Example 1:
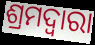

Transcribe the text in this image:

ଶ୍ରମଦ୍ଵାରା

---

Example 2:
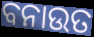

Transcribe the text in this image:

ବନାଉତ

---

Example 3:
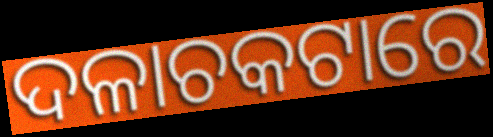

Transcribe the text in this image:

ଦଳାଚକଟାରେ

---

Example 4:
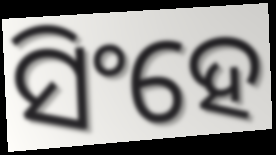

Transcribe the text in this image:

ସିଂହେ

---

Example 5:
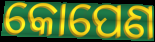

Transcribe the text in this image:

କୋପେଣ